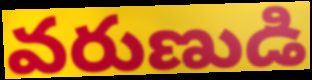
వరుణుడి